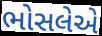
ભોસલેએ